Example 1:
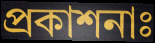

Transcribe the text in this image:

প্রকাশনাঃ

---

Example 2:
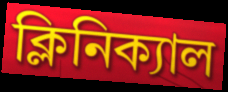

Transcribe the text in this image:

ক্লিনিক্যাল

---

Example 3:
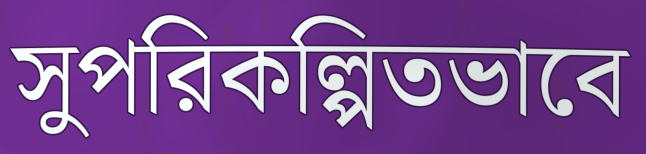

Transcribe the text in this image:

সুপরিকল্পিতভাবে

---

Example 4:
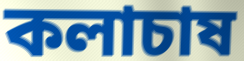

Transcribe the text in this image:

কলাচাষ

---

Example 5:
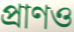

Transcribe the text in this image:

প্রাণও